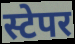
स्टेपर